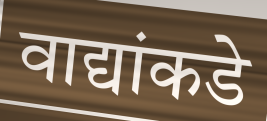
वाद्यांकडे